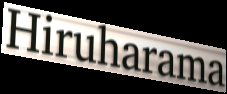
Hiruharama